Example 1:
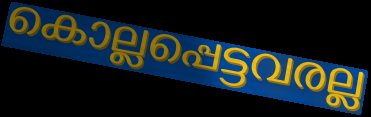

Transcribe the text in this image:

കൊല്ലപ്പെട്ടവരല്ല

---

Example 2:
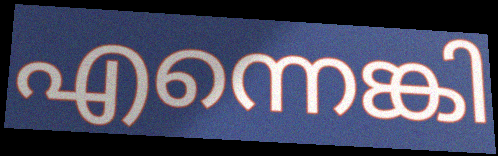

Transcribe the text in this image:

എന്നെങ്കി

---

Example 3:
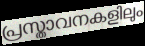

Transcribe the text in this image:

പ്രസ്താവനകളിലും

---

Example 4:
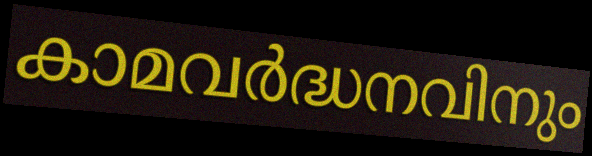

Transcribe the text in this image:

കാമവർദ്ധനവിനും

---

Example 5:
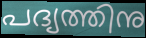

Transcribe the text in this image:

പദ്യത്തിനു